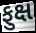
ફુક્ષ